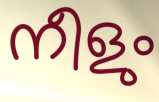
നീളും